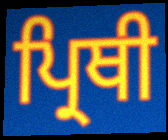
ਪ੍ਰਿਥੀ